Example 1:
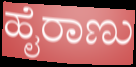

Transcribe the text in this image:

ಹೈರಾಣು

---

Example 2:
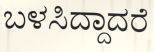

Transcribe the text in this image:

ಬಳಸಿದ್ದಾದರೆ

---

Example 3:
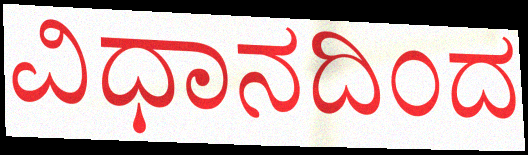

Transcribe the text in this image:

ವಿಧಾನದಿಂದ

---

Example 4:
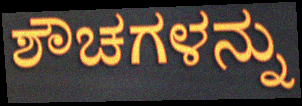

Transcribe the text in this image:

ಶೌಚಗಳನ್ನು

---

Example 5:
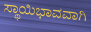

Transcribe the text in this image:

ಸ್ಥಾಯಿಭಾವವಾಗಿ